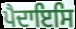
ਪੈਦਾਇਸਿ